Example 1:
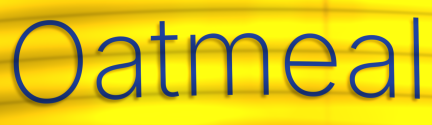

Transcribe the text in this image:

Oatmeal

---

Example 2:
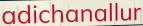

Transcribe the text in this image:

adichanallur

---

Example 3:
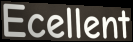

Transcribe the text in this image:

Ecellent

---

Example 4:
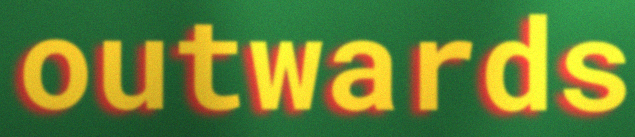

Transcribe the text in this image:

outwards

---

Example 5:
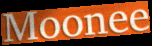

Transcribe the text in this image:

Moonee